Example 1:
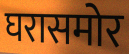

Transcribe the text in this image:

घरासमोर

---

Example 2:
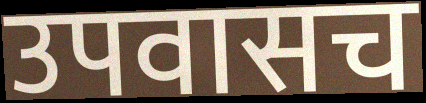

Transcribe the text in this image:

उपवासच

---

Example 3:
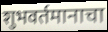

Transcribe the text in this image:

शुभवर्तमानाचा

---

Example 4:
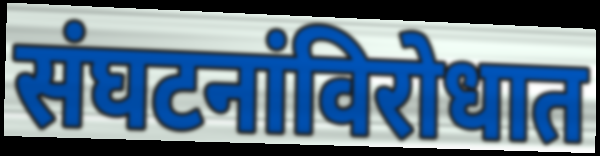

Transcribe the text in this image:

संघटनांविरोधात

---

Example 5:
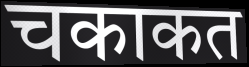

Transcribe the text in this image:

चकाकत